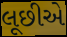
લૂછીએ